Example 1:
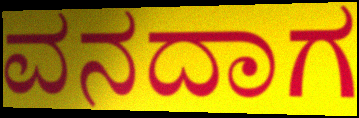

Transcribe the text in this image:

ವನದಾಗ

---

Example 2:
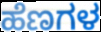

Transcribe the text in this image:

ಹೆಣಗಳ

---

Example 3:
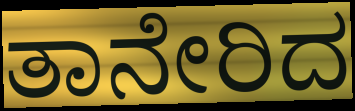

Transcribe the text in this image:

ತಾನೇರಿದ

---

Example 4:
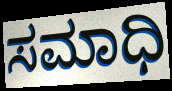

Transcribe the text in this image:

ಸಮಾಧಿ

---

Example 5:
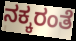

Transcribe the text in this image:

ನಕ್ಕರಂತೆ